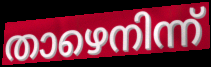
താഴെനിന്ന്